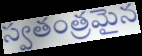
స్వతంత్రమైన